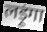
लड़ूंगा